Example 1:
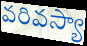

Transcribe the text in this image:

వరివస్యా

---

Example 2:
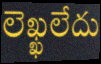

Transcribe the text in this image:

లెఖ్ఖలేదు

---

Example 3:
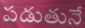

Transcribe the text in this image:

పడుతునే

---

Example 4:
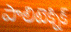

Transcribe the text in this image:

పాలిటెక్నిక్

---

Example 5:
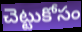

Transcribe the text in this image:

చెట్టుకోసం